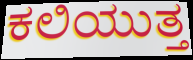
ಕಲಿಯುತ್ತ